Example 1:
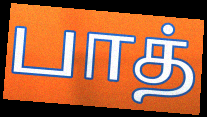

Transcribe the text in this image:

பாத்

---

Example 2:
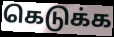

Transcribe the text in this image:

கெடுக்க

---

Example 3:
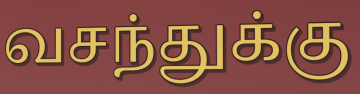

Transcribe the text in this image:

வசந்துக்கு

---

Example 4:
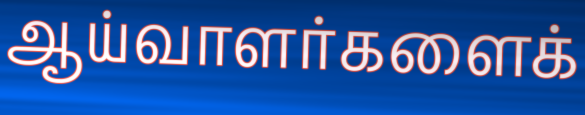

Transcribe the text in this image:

ஆய்வாளர்களைக்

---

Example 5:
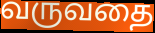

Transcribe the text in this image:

வருவதை